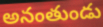
అనంతుండు